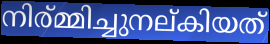
നിര്മ്മിച്ചുനല്കിയത്